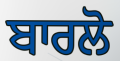
ਬਾਰਲੋ